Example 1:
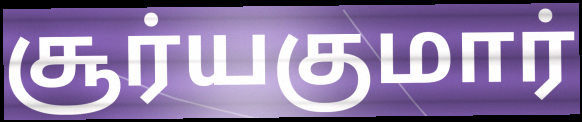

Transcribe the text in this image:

சூர்யகுமார்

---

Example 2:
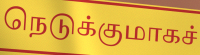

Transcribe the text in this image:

நெடுக்குமாகச்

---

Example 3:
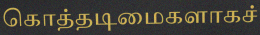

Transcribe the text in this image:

கொத்தடிமைகளாகச்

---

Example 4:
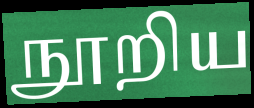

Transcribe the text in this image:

நூறிய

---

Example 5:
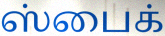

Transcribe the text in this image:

ஸ்பைக்